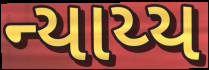
ન્યાય્ય